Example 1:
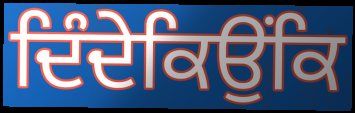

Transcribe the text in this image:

ਦਿੰਦੇਕਿਉਂਕਿ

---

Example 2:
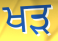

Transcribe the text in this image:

ਖੜ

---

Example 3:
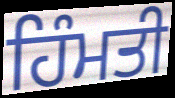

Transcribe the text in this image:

ਹਿੰਮਤੀ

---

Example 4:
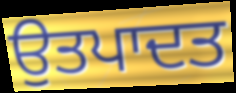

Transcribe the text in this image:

ਉਤਪਾਦਤ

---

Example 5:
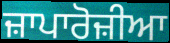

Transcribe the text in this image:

ਜ਼ਾਪਾਰੋਜ਼ੀਆ